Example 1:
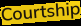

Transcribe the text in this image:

Courtship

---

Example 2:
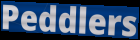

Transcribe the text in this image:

Peddlers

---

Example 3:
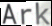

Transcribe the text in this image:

Ark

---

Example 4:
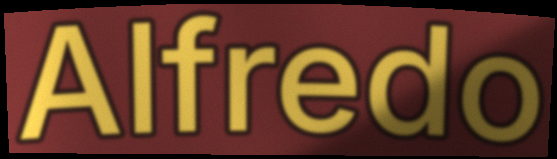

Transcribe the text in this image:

Alfredo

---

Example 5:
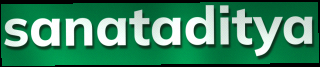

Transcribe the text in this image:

sanataditya